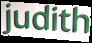
judith